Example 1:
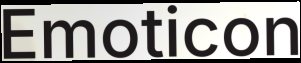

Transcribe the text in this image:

Emoticon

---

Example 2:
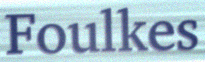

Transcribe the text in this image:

Foulkes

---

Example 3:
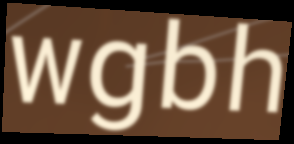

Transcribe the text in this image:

wgbh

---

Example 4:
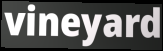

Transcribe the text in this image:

vineyard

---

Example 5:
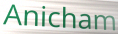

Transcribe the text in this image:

Anicham